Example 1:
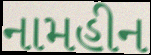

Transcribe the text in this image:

નામહીન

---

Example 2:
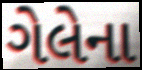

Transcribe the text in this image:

ગેલેના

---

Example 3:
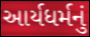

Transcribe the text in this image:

આર્યધર્મનું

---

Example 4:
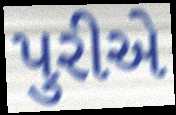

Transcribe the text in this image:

પુરીએ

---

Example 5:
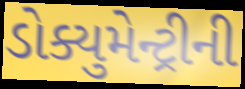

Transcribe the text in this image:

ડોક્યુમેન્ટ્રીની